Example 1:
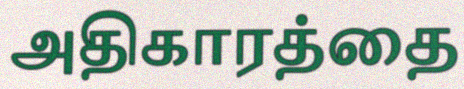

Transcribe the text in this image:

அதிகாரத்தை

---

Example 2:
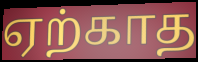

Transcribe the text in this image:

ஏற்காத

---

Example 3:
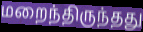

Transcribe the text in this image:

மறைந்திருந்தது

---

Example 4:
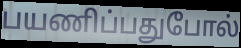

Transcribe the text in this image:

பயணிப்பதுபோல்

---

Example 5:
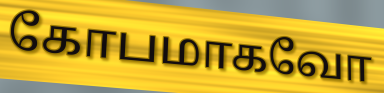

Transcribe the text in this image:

கோபமாகவோ